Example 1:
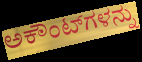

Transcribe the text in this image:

ಅಕೌಂಟ್‌ಗಳನ್ನು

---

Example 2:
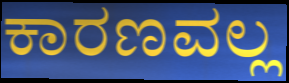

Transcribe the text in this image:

ಕಾರಣವಲ್ಲ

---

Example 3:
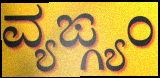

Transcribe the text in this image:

ವ್ಯಙ್ಗ್ಯಂ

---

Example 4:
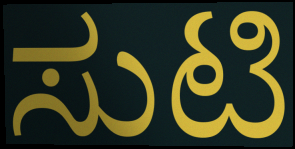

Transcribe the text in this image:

ಸುಟಿ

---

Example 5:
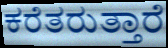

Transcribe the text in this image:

ಕರೆತರುತ್ತಾರೆ